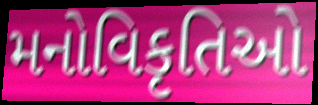
મનોવિકૃતિઓ